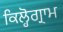
ਕਿਲ੍ਹੋਗ੍ਰਾਮ